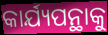
କାର୍ଯ୍ୟପନ୍ଥାକୁ